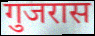
गुजरास